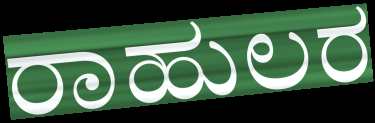
ರಾಹುಲರ